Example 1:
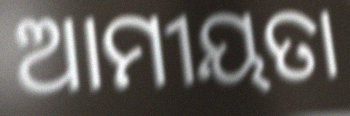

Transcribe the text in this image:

ଆମୀୟତା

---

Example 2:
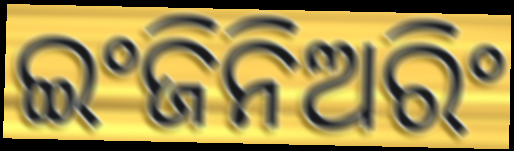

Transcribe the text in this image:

ଇଂଜିନିଅରିଂ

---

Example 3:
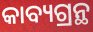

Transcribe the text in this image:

କାବ୍ୟଗ୍ରନ୍ଥ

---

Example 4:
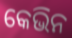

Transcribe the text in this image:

କେଭିନ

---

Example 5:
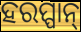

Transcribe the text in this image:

ହରପ୍ପାନ୍